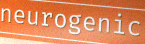
neurogenic